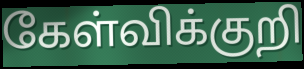
கேள்விக்குறி